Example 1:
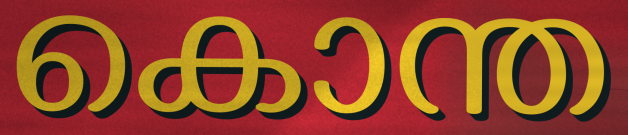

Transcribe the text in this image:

കൊന്ത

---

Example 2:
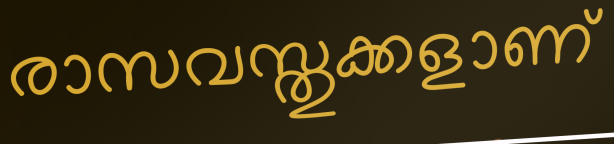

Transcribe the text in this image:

രാസവസ്തുക്കളാണ്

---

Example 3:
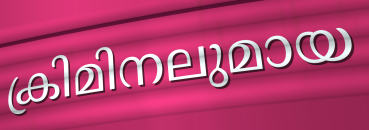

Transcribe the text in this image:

ക്രിമിനലുമായ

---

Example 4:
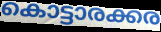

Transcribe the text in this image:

കൊട്ടാരക്കര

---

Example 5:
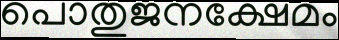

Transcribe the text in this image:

പൊതുജനക്ഷേമം